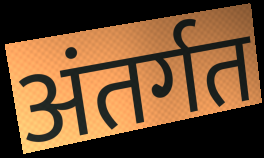
अंतर्गत